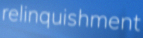
relinquishment